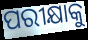
ପରୀକ୍ଷାକୁ